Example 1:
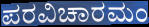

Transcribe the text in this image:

ಪರವಿಚಾರಮಂ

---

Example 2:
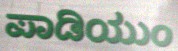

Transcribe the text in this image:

ಪಾಡಿಯುಂ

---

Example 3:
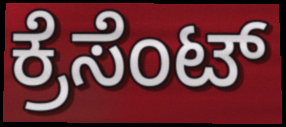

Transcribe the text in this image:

ಕ್ರೆಸೆಂಟ್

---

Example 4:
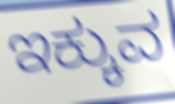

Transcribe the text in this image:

ಇಕ್ಕುವ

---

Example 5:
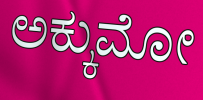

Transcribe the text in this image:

ಅಕ್ಕುಮೋ